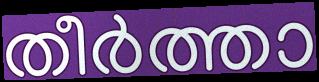
തീർത്താ